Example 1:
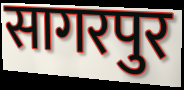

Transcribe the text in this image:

सागरपुर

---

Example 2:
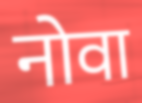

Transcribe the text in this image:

नोवा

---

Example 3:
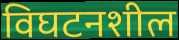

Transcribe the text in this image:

विघटनशील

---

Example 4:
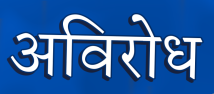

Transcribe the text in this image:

अविरोध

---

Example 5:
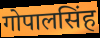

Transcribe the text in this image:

गोपालसिंह